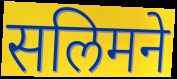
सलिमने